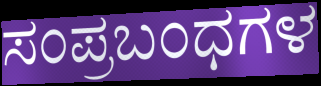
ಸಂಪ್ರಬಂಧಗಳ